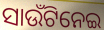
ସାଉଁଟିନେଇ